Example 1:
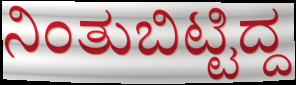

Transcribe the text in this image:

ನಿಂತುಬಿಟ್ಟಿದ್ದ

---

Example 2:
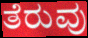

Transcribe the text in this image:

ತೆರುವು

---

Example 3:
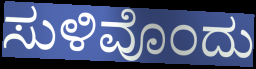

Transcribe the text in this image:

ಸುಳಿವೊಂದು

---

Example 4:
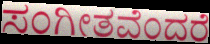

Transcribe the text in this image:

ಸಂಗೀತವೆಂದರೆ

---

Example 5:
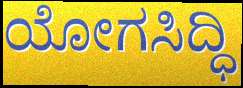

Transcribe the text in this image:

ಯೋಗಸಿದ್ಧಿ